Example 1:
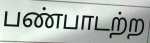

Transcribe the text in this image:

பண்பாடற்ற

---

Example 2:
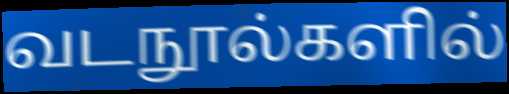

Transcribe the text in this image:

வடநூல்களில்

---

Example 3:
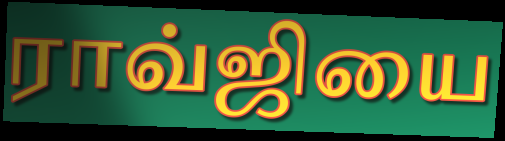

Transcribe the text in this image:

ராவ்ஜியை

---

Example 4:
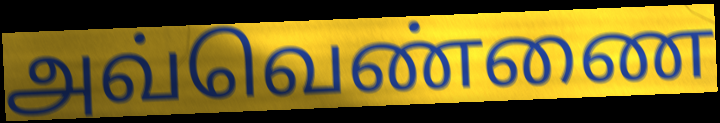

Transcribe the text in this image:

அவ்வெண்ணை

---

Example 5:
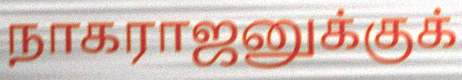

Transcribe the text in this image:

நாகராஜனுக்குக்